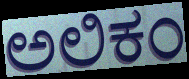
ಅಲಿಕಂ